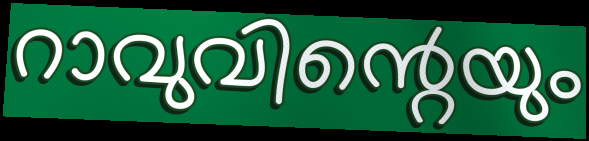
റാവുവിന്റെയും